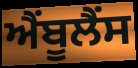
ਐੰਬੂਲੈੰਸ